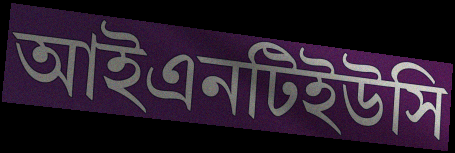
আইএনটিইউসি